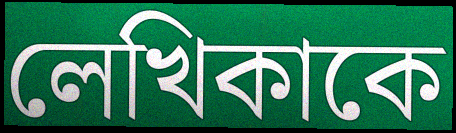
লেখিকাকে